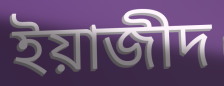
ইয়াজীদ